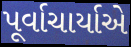
પૂર્વાચાર્યાએ